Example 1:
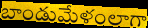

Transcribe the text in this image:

బాండుమేళంలాగా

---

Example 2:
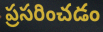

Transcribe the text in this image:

ప్రసరించడం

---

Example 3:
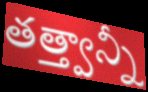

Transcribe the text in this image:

తత్త్వాన్నీ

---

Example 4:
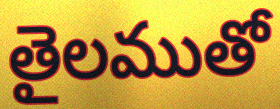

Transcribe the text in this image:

తైలముతో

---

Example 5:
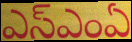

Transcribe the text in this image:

ఎస్ఎంఏ